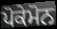
ਪੋਕੇਮੋਨ